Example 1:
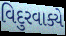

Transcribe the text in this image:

વિદુરવાક્યે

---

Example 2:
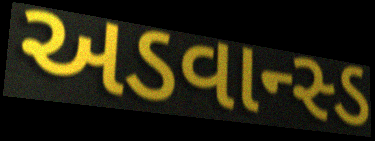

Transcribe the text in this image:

અડવાન્સ્ડ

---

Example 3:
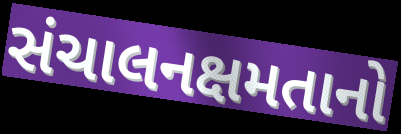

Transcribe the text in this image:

સંચાલનક્ષમતાનો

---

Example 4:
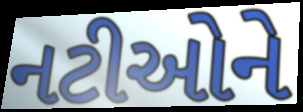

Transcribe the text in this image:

નટીઓને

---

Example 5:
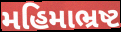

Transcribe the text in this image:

મહિમાભ્રષ્ટ